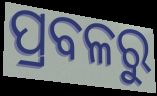
ପ୍ରବଳରୁ